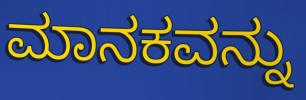
ಮಾನಕವನ್ನು